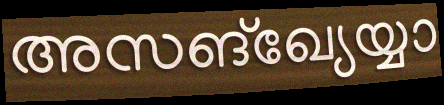
അസങ്ഖ്യേയ്യാ